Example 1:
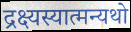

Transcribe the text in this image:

द्रक्ष्यस्यात्मन्यथो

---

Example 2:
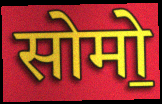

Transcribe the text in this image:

सोमो॒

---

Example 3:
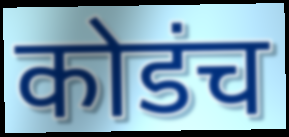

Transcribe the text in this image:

कोडंच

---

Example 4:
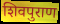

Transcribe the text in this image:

शिवपुराण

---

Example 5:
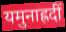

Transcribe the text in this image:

यमुनाह्रदीं